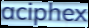
aciphex